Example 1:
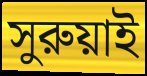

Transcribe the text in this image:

সুরুয়াই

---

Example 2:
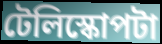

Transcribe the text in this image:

টেলিস্কোপটা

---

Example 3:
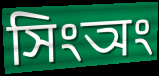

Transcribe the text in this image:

সিংঅং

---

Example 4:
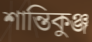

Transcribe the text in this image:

শান্তিকুঞ্জ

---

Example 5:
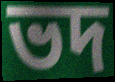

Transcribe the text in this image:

ভদ